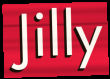
Jilly